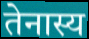
तेनास्य